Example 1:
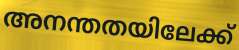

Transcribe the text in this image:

അനന്തതയിലേക്ക്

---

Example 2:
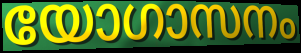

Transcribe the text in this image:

യോഗാസനം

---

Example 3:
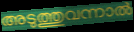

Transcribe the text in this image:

അടുത്തുവന്നാൽ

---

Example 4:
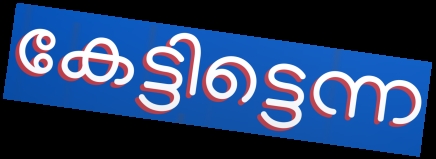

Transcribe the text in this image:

കേട്ടിട്ടെന്ന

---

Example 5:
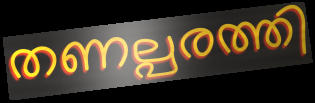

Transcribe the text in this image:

തണല്പരത്തി